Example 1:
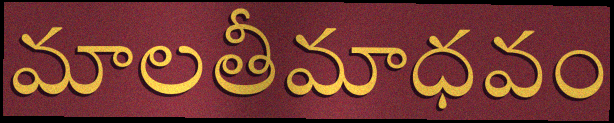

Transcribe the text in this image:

మాలతీమాధవం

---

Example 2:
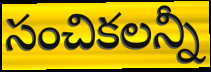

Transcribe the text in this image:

సంచికలన్నీ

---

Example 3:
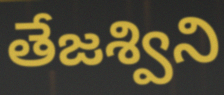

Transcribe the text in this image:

తేజశ్విని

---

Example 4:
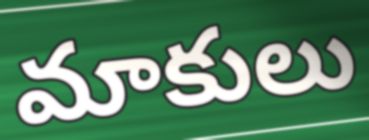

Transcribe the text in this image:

మాకులు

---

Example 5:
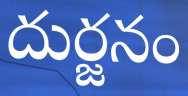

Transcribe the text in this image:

దుర్జనం